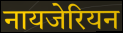
नायजेरियन